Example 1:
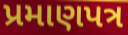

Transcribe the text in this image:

પ્રમાણપત્ર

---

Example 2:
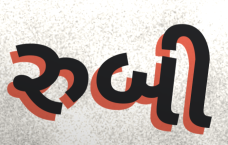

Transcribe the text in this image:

રુબી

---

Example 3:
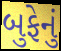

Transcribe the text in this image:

બુફેનું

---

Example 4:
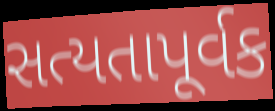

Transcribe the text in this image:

સત્યતાપૂર્વક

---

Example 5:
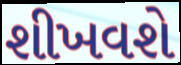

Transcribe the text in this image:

શીખવશે